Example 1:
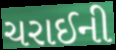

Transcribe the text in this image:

ચરાઈની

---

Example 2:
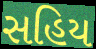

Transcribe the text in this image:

સહિય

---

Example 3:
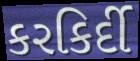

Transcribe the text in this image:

કરકિર્દી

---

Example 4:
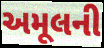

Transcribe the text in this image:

અમૂલની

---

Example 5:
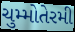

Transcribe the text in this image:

ચુમ્મોતેરમી